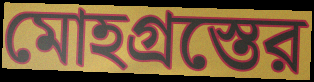
মোহগ্রস্তের